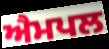
ਐਮਪਲ